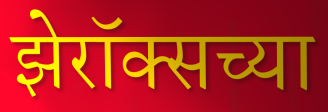
झेरॉक्सच्या